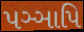
પઞ્ઞાપિ